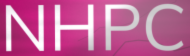
NHPC